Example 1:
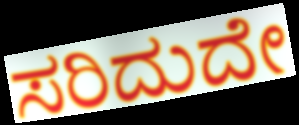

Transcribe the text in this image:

ಸರಿದುದೇ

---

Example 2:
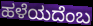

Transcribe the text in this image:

ಹಳೆಯದೆಂಬ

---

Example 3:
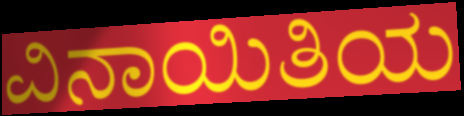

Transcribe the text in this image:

ವಿನಾಯಿತಿಯ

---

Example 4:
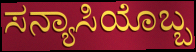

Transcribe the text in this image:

ಸನ್ಯಾಸಿಯೊಬ್ಬ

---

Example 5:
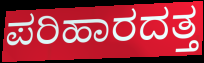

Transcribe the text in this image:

ಪರಿಹಾರದತ್ತ